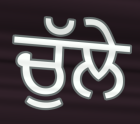
ਚੁੱਲੇ